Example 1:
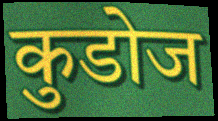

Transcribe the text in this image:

कुडोज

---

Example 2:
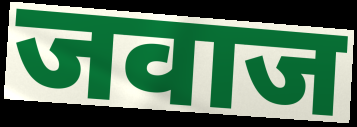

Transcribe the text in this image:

जवाज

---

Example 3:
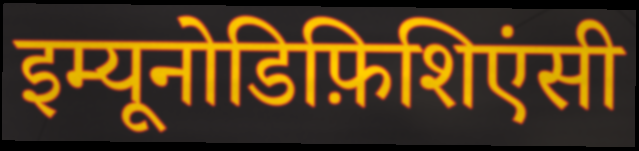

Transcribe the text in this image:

इम्यूनोडिफ़िशिएंसी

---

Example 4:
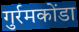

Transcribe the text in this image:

गुर्रमकोंडा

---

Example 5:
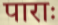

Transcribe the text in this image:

पाराः